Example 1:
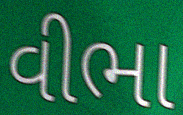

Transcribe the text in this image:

વીભા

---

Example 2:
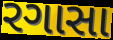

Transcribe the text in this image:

રગાસા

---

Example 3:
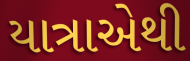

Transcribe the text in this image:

યાત્રાએથી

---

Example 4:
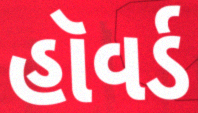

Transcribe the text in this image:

હૉવર્ડ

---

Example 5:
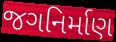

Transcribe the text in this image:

જગનિર્માણ